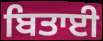
ਬਿਤਾਈ